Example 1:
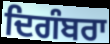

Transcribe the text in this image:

ਦਿਗੰਬਰਾ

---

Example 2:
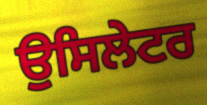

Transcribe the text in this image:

ਉਸਿਲੇਟਰ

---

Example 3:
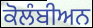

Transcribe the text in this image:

ਕੋਲੰਬੀਅਨ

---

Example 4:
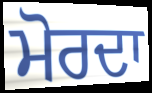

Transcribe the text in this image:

ਮੋਰਦਾ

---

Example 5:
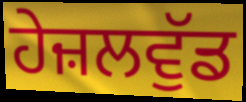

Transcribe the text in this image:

ਹੇਜ਼ਲਵੁੱਡ